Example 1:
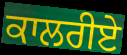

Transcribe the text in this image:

ਕਾਲਰੀਏ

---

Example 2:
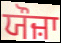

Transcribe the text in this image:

ਯੌਜ਼ਾ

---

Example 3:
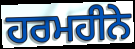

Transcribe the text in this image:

ਹਰਮਹੀਨੇ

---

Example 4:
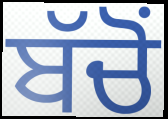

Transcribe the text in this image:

ਬੱਚੋਂ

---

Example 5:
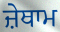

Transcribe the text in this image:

ਜ਼ੇਥਾਮ